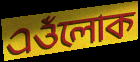
এওঁলোক